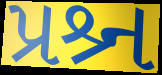
પ્રશ્ર્ન